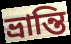
ভ্রান্তি